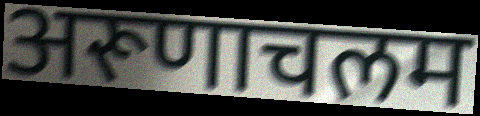
अरूणाचलम